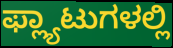
ಫ್ಲ್ಯಾಟುಗಳಲ್ಲಿ